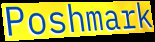
Poshmark